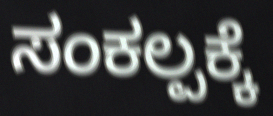
ಸಂಕಲ್ಪಕ್ಕೆ